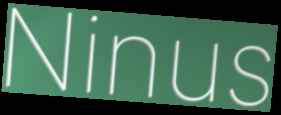
Ninus